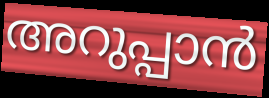
അറുപ്പാൻ